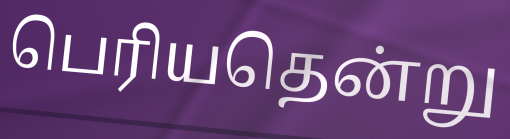
பெரியதென்று